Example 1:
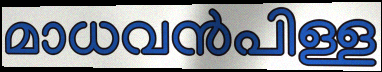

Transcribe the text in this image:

മാധവൻപിള്ള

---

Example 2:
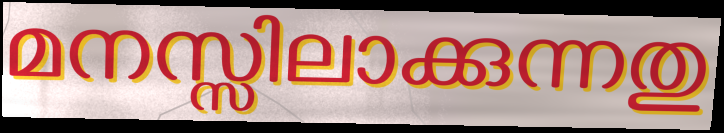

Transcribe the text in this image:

മനസ്സിലാക്കുന്നതു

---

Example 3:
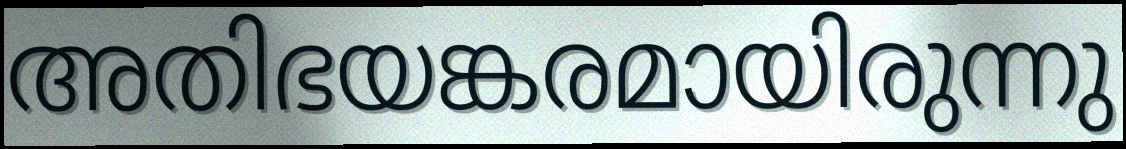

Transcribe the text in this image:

അതിഭയങ്കരമായിരുന്നു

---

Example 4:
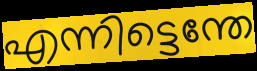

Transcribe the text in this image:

എന്നിട്ടെന്തേ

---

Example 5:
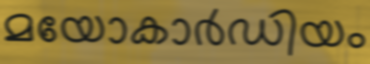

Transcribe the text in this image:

മയോകാർഡിയം